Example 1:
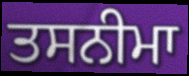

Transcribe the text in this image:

ਤਸਨੀਮਾ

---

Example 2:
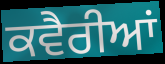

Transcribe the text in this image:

ਕਵੈਰੀਆਂ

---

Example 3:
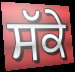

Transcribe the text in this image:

ਸੱਕੇ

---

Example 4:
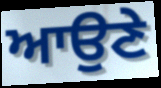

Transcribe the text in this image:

ਆਉਣੇ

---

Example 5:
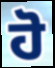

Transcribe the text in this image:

ਹੋ